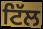
ਟਿੱਲ